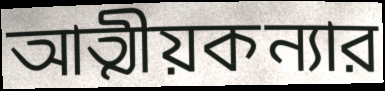
আত্মীয়কন্যার